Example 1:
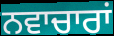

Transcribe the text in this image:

ਨਵਾਚਾਰਾਂ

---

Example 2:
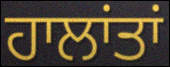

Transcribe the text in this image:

ਹਾਲਾਂਤਾਂ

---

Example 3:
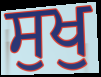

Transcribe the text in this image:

ਸੁਖੁ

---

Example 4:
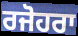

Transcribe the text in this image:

ਰਜੋਹਰਾ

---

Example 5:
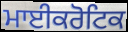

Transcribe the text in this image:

ਮਾਈਕਰੋਟਿਕ